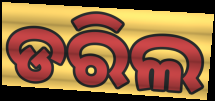
ଡରିଲ